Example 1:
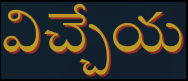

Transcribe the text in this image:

విచ్చేయ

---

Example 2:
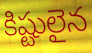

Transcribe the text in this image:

కిష్టులైన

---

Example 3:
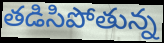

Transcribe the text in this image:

తడిసిపోతున్న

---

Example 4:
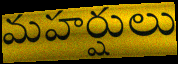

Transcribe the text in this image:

మహర్షులు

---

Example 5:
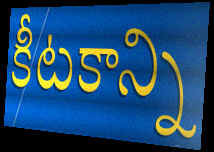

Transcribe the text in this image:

కీటకాన్ని